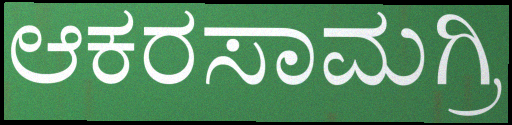
ಆಕರಸಾಮಗ್ರಿ